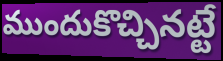
ముందుకొచ్చినట్టే